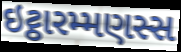
ઇટ્ઠારમ્મણસ્સ